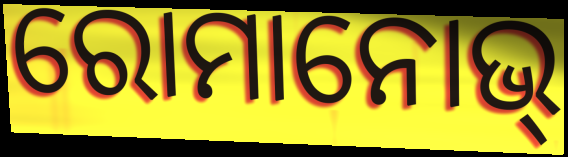
ରୋମାନୋଭ୍